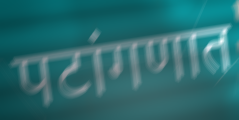
पटांगणात